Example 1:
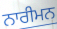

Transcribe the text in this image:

ਨਾਰੀਮਨ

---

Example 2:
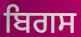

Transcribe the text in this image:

ਬਿਗਸ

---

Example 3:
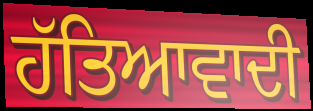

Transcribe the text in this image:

ਹੱਤਿਆਵਾਦੀ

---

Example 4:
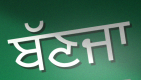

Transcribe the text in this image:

ਬੱਣਜਾ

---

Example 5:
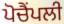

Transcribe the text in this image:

ਪੋਚੈਂਪਲੀ